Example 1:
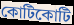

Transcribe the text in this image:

কোটিকোটি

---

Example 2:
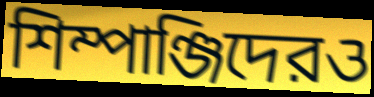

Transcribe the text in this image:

শিম্পাঞ্জিদেরও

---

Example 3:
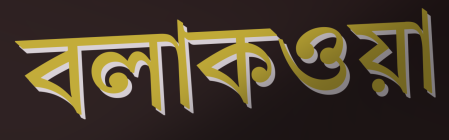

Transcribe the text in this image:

বলাকওয়া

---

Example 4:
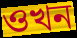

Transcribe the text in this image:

ওখন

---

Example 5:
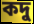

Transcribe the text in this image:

কদু